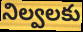
నిల్వలకు